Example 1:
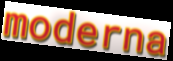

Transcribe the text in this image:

moderna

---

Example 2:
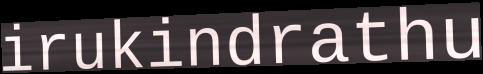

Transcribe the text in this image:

irukindrathu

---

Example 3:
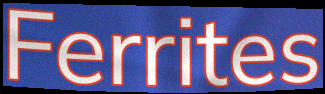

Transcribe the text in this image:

Ferrites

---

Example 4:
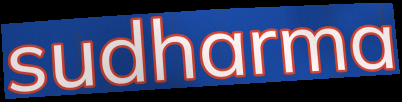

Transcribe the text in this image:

sudharma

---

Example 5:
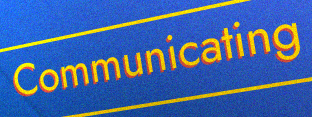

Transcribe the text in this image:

Communicating